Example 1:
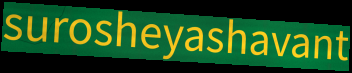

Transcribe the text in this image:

surosheyashavant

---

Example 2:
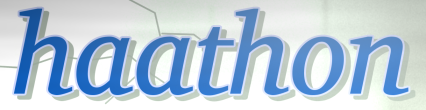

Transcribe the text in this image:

haathon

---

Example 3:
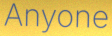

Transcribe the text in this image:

Anyone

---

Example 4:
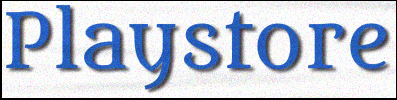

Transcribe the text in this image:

Playstore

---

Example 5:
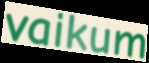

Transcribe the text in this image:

vaikum